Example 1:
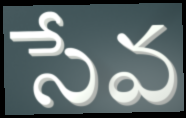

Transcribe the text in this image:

సేవ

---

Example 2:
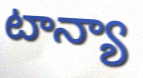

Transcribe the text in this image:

టాన్యా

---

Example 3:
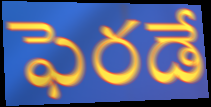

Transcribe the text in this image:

ఫెరడే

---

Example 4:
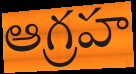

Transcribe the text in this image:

ఆగ్రహ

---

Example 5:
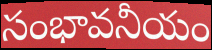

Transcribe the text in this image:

సంభావనీయం